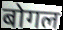
बोगल